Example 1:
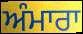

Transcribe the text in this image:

ਅੰਮਾਰਾ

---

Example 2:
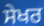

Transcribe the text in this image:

ਸੇਖਰ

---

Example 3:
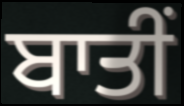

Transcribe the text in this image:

ਬਾਤੀਂ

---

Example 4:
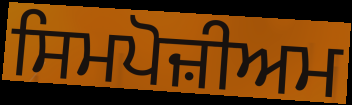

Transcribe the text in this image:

ਸਿਮਪੋਜ਼ੀਅਮ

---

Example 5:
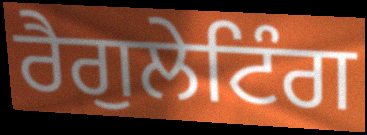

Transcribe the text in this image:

ਰੈਗੁਲੇਟਿੰਗ